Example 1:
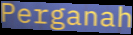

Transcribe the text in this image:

Perganah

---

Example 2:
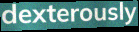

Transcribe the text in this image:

dexterously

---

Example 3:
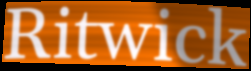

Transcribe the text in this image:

Ritwick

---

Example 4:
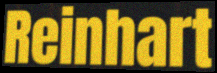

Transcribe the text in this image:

Reinhart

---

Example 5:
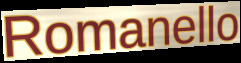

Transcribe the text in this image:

Romanello